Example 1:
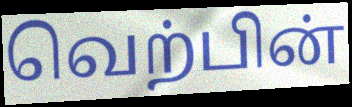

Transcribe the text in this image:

வெற்பின்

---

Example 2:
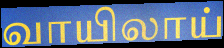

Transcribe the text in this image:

வாயிலாய்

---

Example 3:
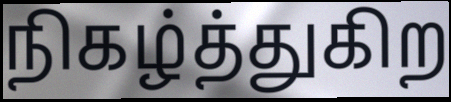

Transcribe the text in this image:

நிகழ்த்துகிற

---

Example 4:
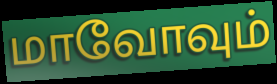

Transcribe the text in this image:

மாவோவும்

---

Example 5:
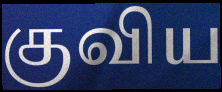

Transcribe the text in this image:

குவிய